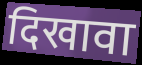
दिखावा